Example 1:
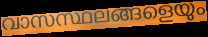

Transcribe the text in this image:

വാസസ്ഥലങ്ങളെയും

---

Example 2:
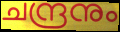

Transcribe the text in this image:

ചന്ദ്രനും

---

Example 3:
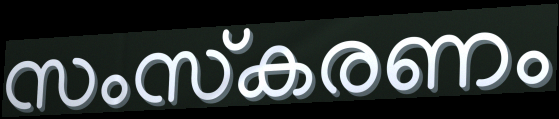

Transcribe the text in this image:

സംസ്‌കരണം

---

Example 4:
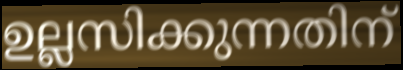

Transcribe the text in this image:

ഉല്ലസിക്കുന്നതിന്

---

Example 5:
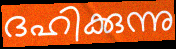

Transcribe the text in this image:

ദഹിക്കുന്നു